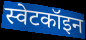
स्वेटकॉइन